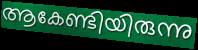
ആകേണ്ടിയിരുന്നു